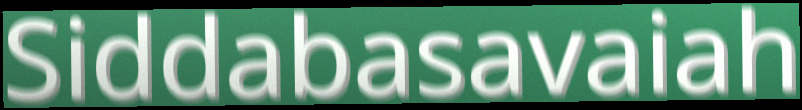
Siddabasavaiah